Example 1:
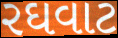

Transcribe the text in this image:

રઘવાટ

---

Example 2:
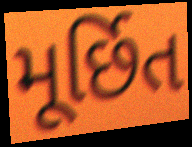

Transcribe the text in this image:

મૂર્છિત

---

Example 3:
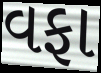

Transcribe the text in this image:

વફા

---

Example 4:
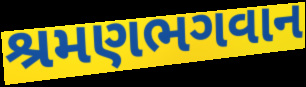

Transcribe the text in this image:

શ્રમણભગવાન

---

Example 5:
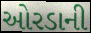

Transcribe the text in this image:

ઓરડાની